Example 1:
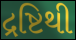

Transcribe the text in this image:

દ્રષ્ટિથી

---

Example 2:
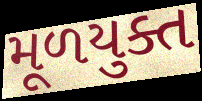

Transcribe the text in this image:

મૂળયુક્ત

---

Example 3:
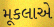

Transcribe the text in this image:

મૂકલાએ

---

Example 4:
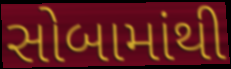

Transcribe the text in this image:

સોબામાંથી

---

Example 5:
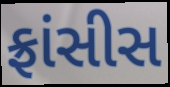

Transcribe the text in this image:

ફ્રાંસીસ